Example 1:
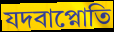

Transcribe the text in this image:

যদবাপ্নোতি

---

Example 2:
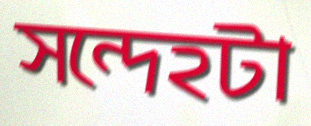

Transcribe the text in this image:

সন্দেহটা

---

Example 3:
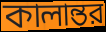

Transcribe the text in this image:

কালান্তর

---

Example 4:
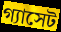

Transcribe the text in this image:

গ্যাসেট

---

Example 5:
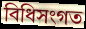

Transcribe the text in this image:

বিধিসংগত